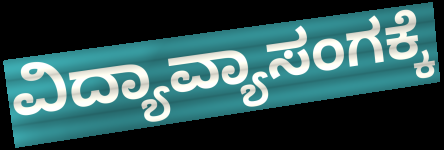
ವಿದ್ಯಾವ್ಯಾಸಂಗಕ್ಕೆ